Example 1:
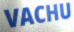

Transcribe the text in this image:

VACHU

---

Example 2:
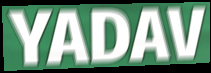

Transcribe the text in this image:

YADAV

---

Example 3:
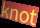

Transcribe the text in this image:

knot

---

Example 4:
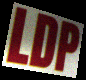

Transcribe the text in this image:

LDP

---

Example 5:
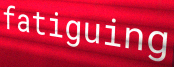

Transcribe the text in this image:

fatiguing